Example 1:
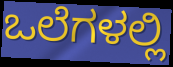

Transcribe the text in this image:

ಒಲೆಗಳಲ್ಲಿ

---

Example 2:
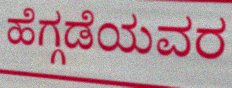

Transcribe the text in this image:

ಹೆಗ್ಗಡೆಯವರ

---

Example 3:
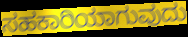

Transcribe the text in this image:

ಸಹಕಾರಿಯಾಗುವುದು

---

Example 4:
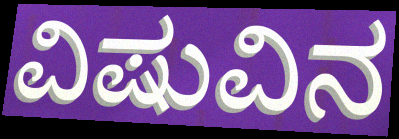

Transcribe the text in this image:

ವಿಷುವಿನ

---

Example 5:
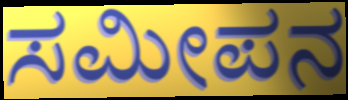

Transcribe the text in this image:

ಸಮೀಪನ